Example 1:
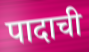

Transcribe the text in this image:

पादाची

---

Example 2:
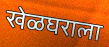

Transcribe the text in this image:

खेळघराला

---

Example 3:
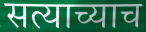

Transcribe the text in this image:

सत्याच्याच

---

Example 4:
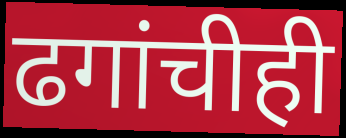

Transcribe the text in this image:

ढगांचीही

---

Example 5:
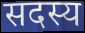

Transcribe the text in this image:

सदस्य